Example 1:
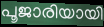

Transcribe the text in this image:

പൂജാരിയായി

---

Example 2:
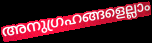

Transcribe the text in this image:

അനുഗ്രഹങ്ങളെല്ലാം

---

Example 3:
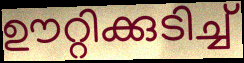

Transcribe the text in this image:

ഊറ്റിക്കുടിച്ച്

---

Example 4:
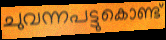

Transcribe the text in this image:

ചുവന്നപട്ടുകൊണ്ട്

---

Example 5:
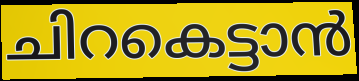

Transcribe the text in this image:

ചിറകെട്ടാൻ